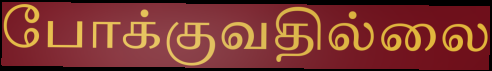
போக்குவதில்லை